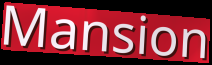
Mansion